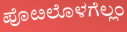
ಪೊೞಲೊಳಗೆಲ್ಲಂ